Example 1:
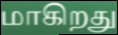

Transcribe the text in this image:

மாகிறது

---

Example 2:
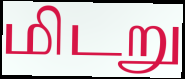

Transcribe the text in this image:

மிடறு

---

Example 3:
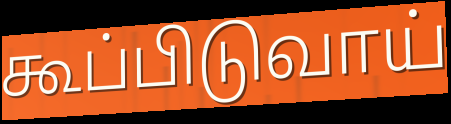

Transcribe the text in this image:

கூப்பிடுவாய்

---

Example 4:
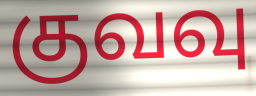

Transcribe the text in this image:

குவவு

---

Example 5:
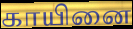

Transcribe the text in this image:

காயினை